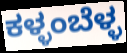
ಕಳ್ಳಂಬೆಳ್ಳ